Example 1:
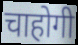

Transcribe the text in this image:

चाहोगी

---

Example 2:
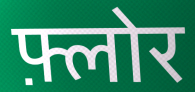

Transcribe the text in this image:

फ़्लोर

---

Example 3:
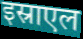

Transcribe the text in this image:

इस्राएल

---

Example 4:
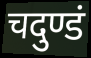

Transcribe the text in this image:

चदुण्डं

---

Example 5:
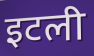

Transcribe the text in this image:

इटली